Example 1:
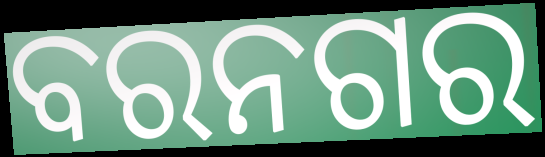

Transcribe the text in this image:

ବରନଗର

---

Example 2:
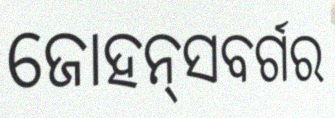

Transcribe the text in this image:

ଜୋହନ୍‌ସବର୍ଗର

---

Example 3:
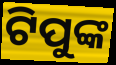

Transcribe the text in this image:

ଟିପୁଙ୍କ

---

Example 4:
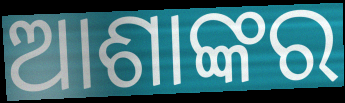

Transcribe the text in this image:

ଆଶାଙ୍କର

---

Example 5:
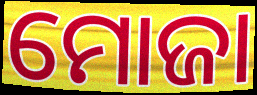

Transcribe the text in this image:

ମୋଜା